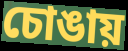
চোঙায়